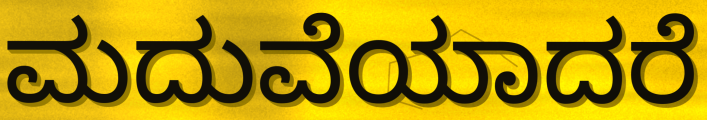
ಮದುವೆಯಾದರೆ